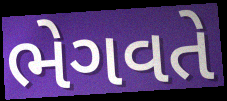
ભેગવતે